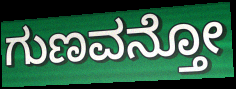
ಗುಣವನ್ತೋ